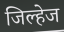
जिल्हेज